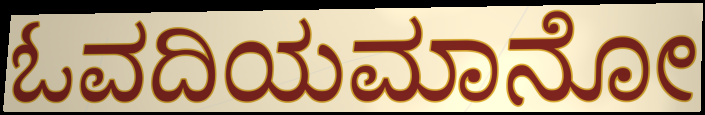
ಓವದಿಯಮಾನೋ